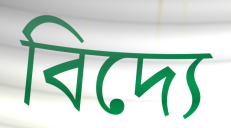
বিদ্যে